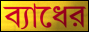
ব্যাধের